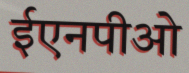
ईएनपीओ